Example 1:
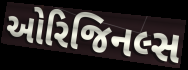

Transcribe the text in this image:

ઓરિજિનલ્સ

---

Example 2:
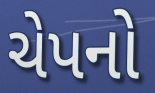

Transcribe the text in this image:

ચેપનો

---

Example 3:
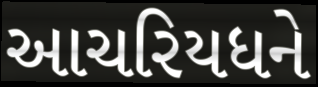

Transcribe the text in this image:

આચરિયધને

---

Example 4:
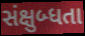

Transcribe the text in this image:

સંક્ષુબ્ધતા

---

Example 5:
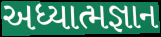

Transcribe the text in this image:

અધ્યાત્મજ્ઞાન